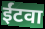
ईंटवा